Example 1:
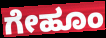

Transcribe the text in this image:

ಗೇಹೂಂ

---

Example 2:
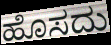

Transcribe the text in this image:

ಹೊಸದು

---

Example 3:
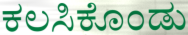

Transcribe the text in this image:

ಕಲಸಿಕೊಂಡು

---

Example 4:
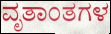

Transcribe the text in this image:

ವೃತಾಂತಗಳ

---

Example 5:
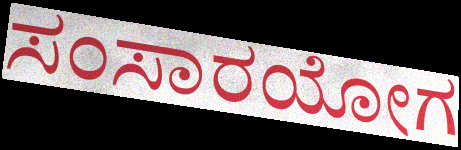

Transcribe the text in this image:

ಸಂಸಾರಯೋಗ